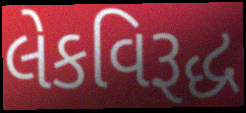
લેકવિરૂદ્ધ